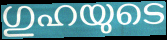
ഗുഹയുടെ